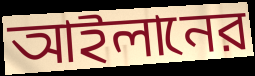
আইলানের